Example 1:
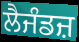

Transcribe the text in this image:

ਲੈਜੰਡਜ਼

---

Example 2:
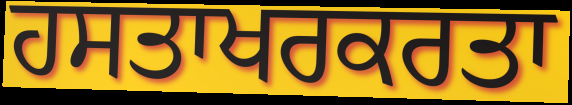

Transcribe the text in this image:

ਹਸਤਾਖਰਕਰਤਾ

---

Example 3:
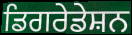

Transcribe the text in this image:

ਡਿਗਰੇਡੇਸ਼ਨ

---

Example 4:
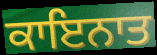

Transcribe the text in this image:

ਕਾਇਨਾਤ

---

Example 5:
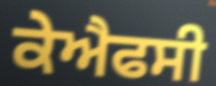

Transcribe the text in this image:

ਕੇਐਫਸੀ